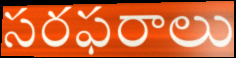
సరఫరాలు